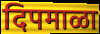
दिपमाळा